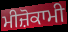
ਮੀਜ਼ੋਕਾਮੀ